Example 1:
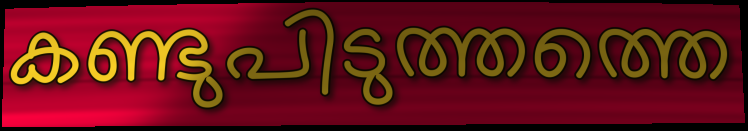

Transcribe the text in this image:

കണ്ടുപിടുത്തത്തെ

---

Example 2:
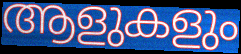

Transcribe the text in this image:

ആളുകളും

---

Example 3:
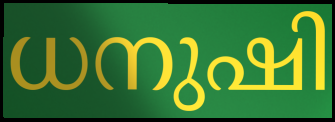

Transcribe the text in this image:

ധനുഷി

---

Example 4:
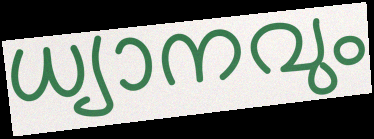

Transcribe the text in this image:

ധ്യാനവും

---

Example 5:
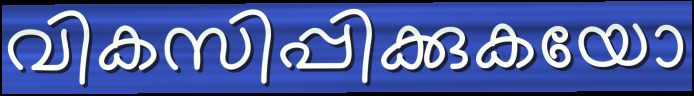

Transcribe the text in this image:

വികസിപ്പിക്കുകയോ